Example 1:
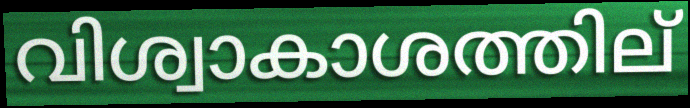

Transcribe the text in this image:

വിശ്വാകാശത്തില്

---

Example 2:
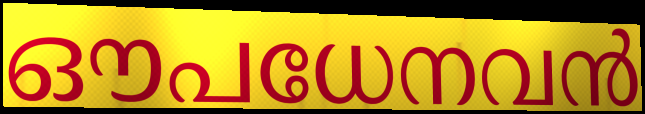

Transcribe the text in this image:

ഔപധേനവൻ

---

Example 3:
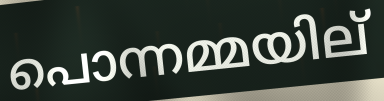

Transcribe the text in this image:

പൊന്നമ്മയില്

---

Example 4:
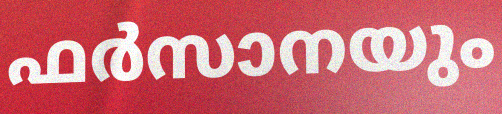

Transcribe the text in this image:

ഫർസാനയും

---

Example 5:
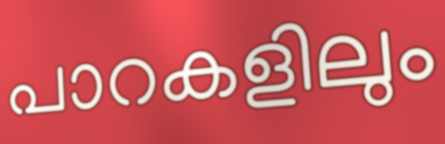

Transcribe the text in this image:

പാറകളിലും